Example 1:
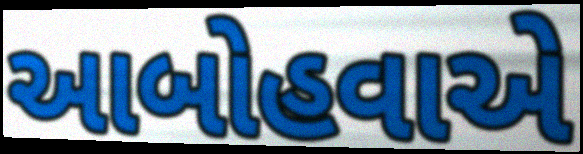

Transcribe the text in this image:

આબોહવાએ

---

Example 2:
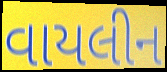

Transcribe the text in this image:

વાયલીન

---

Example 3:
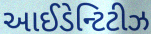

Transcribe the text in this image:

આઈડેન્ટિટીઝ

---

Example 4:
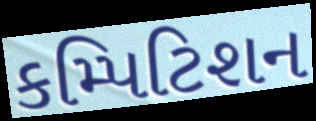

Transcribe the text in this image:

કમ્પિટિશન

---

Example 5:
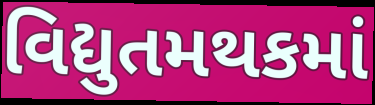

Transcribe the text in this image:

વિદ્યુતમથકમાં